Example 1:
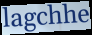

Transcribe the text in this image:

lagchhe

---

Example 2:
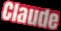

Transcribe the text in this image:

Claude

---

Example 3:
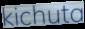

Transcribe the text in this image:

kichuta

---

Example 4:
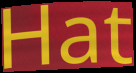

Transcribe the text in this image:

Hat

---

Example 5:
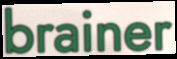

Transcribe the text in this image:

brainer